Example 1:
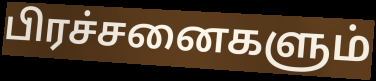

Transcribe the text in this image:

பிரச்சனைகளும்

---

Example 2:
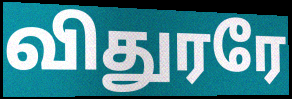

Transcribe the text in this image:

விதுரரே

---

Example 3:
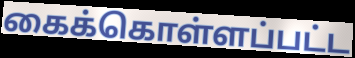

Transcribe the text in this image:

கைக்கொள்ளப்பட்ட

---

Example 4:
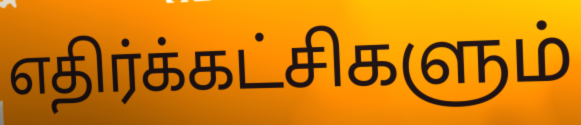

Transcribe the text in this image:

எதிர்க்கட்சிகளும்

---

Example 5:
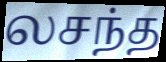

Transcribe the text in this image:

லசந்த